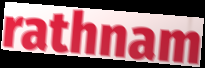
rathnam